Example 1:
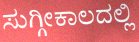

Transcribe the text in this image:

ಸುಗ್ಗೀಕಾಲದಲ್ಲಿ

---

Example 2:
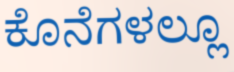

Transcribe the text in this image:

ಕೊನೆಗಳಲ್ಲೂ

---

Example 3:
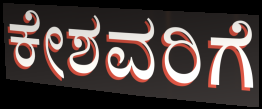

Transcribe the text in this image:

ಕೇಶವರಿಗೆ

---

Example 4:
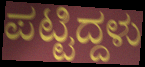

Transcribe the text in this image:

ಪಟ್ಟಿದ್ದಳು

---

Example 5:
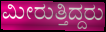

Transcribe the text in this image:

ಮೀರುತ್ತಿದ್ದರು